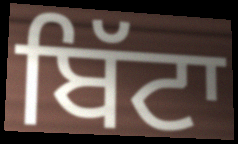
ਬਿੱਟਾ